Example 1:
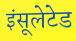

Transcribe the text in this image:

इंसूलेटेड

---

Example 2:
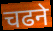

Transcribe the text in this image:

चढने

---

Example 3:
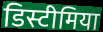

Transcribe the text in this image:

डिस्टीमिया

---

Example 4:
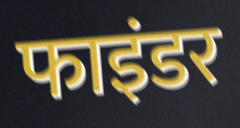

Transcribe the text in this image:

फाइंडर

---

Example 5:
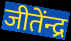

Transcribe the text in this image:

जीतेंन्द्र